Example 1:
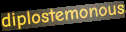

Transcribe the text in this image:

diplostemonous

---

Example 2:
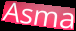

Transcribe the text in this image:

Asma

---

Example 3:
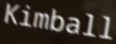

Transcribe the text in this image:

Kimball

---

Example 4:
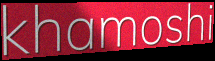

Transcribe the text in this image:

khamoshi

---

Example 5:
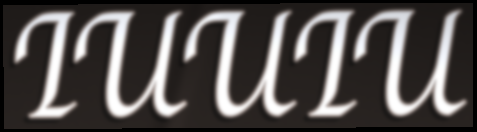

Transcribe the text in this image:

IUUIU